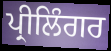
ਪ੍ਰੀਲਿੰਗਰ